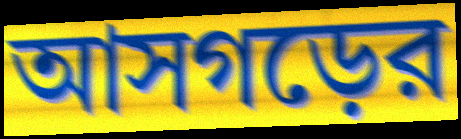
আসগড়ের